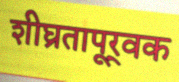
शीघ्रतापूर्वक